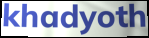
khadyoth